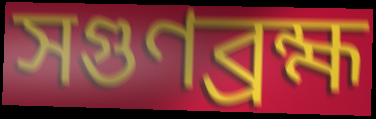
সগুণব্রহ্ম